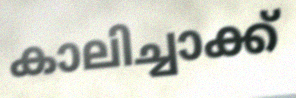
കാലിച്ചാക്ക്